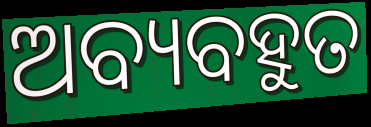
ଅବ୍ୟବହୁତ